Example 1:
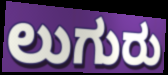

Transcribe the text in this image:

ಲುಗುರು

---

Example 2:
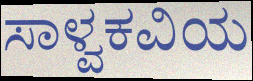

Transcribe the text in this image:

ಸಾಳ್ವಕವಿಯ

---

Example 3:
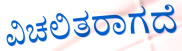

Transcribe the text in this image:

ವಿಚಲಿತರಾಗದೆ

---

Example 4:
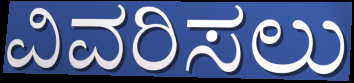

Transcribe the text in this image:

ವಿವರಿಸಲು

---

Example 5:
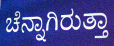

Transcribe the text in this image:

ಚೆನ್ನಾಗಿರುತ್ತಾ